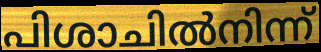
പിശാചിൽനിന്ന്